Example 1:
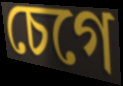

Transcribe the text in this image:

চেগে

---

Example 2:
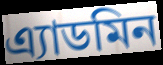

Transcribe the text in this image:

এ্যাডমিন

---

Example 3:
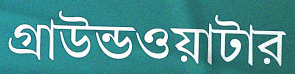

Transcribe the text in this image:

গ্রাউন্ডওয়াটার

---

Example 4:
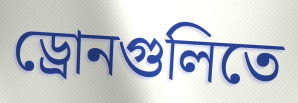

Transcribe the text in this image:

ড্রোনগুলিতে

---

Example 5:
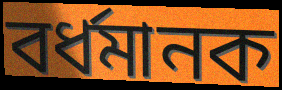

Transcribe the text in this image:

বর্ধমানক